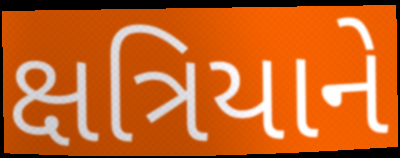
ક્ષત્રિયાને